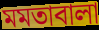
মমতাবালা